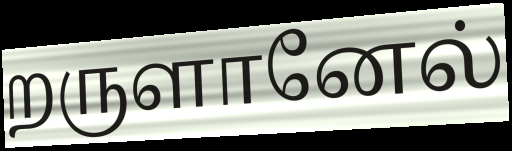
றருளானேல்